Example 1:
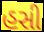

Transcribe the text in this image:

હસી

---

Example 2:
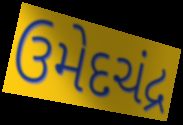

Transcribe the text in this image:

ઉમેદચંદ્ર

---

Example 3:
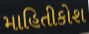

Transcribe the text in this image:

માહિતીકોશ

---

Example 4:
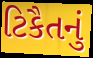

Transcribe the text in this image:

ટિકૈતનું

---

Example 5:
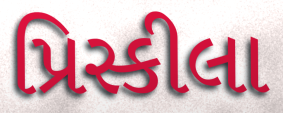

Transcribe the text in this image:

પ્રિસ્કીલા